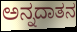
ಅನ್ನದಾತನ